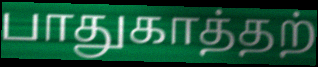
பாதுகாத்தற்